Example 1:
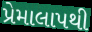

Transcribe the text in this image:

પ્રેમાલાપથી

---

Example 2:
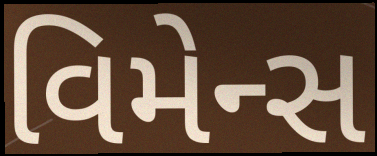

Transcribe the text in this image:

વિમેન્સ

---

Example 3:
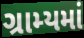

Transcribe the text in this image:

ગ્રામ્યમાં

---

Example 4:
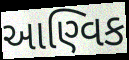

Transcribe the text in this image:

આણ્વિક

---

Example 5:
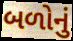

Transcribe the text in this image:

બળોનું